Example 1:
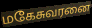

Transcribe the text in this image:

மகேசுவரனை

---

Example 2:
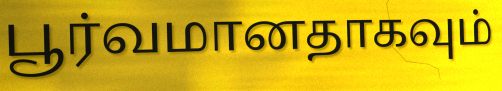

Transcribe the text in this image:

பூர்வமானதாகவும்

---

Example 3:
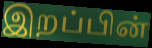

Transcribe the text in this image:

இறப்பின்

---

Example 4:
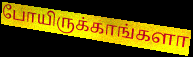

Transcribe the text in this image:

போயிருக்காங்களா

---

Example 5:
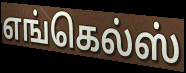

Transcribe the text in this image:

எங்கெல்ஸ்